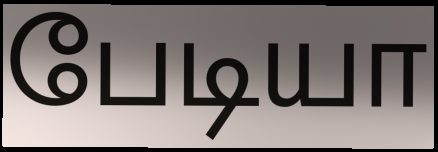
பேடியா